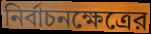
নির্বাচনক্ষেত্রের